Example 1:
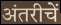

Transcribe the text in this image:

अंतरीचें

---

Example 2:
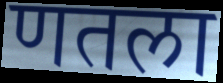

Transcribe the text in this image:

णतला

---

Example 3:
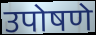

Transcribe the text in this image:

उपोषणे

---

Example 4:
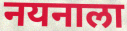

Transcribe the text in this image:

नयनाला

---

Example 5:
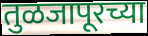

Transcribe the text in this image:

तुळजापूरच्या